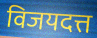
विजयदत्त